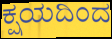
ಕ್ಷಯದಿಂದ